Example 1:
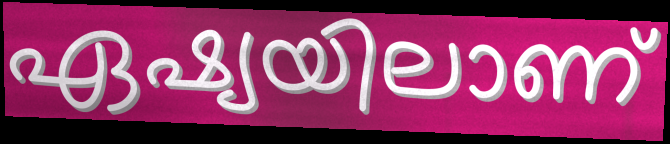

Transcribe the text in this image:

ഏഷ്യയിലാണ്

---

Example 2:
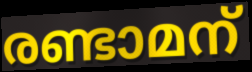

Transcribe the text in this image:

രണ്ടാമന്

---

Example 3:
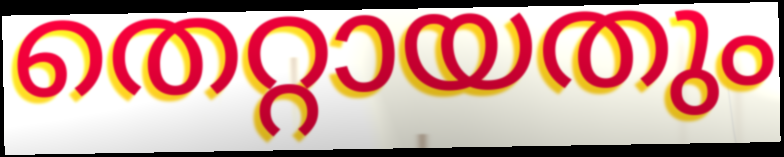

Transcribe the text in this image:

തെറ്റായതും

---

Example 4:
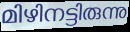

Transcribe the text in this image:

മിഴിനട്ടിരുന്നു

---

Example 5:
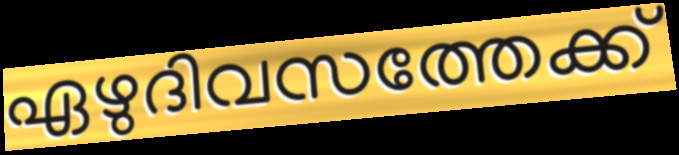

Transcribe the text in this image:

ഏഴുദിവസത്തേക്ക്